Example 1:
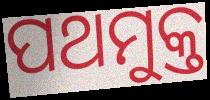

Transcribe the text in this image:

ପଥମୁକ୍ତ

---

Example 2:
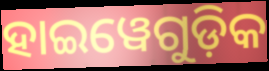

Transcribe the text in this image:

ହାଇୱେଗୁଡ଼ିକ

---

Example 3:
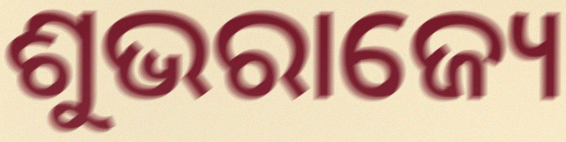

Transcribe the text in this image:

ଶୁଭରାଜ୍ୟେ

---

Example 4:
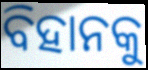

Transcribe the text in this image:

ବିହାନକୁ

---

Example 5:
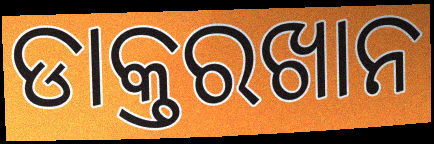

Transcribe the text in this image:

ଡାକ୍ତରଖାନ